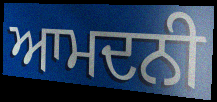
ਆਮਦਨੀ